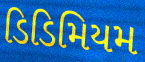
ડિડિમિયમ